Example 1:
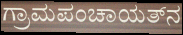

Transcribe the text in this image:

ಗ್ರಾಮಪಂಚಾಯತ್‌ನ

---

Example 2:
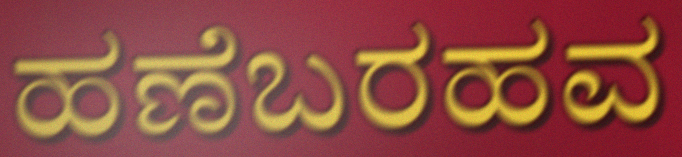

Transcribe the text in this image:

ಹಣೆಬರಹವ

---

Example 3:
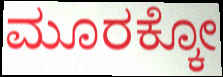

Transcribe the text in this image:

ಮೂರಕ್ಕೋ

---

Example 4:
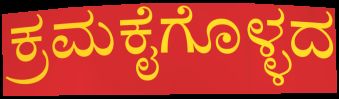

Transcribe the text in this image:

ಕ್ರಮಕೈಗೊಳ್ಳದ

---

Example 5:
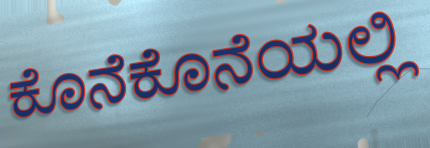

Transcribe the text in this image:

ಕೊನೆಕೊನೆಯಲ್ಲಿ